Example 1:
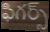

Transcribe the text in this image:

ఫిగర్స్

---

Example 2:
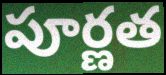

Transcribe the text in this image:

పూర్ణత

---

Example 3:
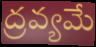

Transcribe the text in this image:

ద్రవ్యమే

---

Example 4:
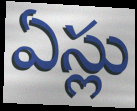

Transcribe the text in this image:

ఏస్లు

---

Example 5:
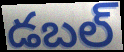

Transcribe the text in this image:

డబల్